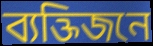
ব্যক্তিজনে